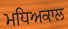
ਮਧਿਅਕਾਲ